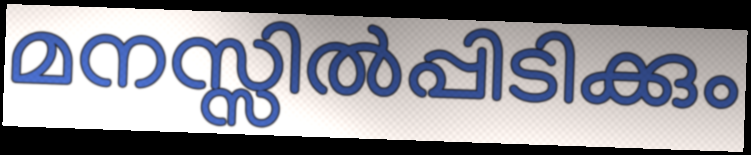
മനസ്സിൽപ്പിടിക്കും